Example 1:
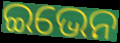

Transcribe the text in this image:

ଇଭେନ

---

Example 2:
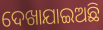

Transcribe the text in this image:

ଦେଖାଯାଇଅଛି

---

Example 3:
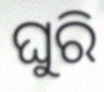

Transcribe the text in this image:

ଘୁରି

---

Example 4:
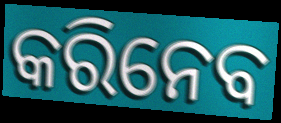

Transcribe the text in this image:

କରିନେବ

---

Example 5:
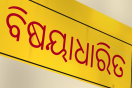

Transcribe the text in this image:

ବିଷୟାଧାରିତ